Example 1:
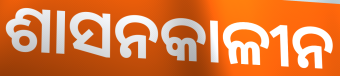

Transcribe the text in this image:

ଶାସନକାଳୀନ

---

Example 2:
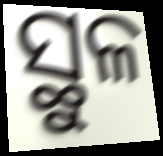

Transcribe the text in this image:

ସ୍ଥୁଳ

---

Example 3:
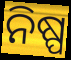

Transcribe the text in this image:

ନିଷ୍ପ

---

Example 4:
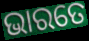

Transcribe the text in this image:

ଭାରତେ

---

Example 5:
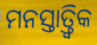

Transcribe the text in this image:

ମନସ୍ତାତ୍ତ୍ଵିକ